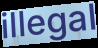
illegal